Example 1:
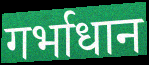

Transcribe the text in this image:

गर्भाधान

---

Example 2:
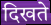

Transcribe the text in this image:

दिखते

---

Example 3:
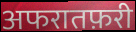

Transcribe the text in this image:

अफरातफ़री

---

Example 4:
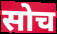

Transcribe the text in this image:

सोच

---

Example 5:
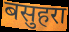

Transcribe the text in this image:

बसुहरा